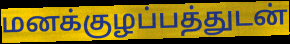
மனக்குழப்பத்துடன்